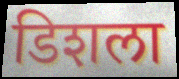
डिशला